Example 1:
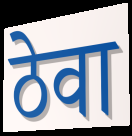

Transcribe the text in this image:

ठेवा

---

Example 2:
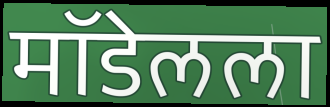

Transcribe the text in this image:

मॉडेलला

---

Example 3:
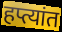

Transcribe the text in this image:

हप्त्यांत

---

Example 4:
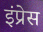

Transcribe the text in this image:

इंप्रेस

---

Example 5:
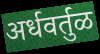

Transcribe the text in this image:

अर्धवर्तुळ